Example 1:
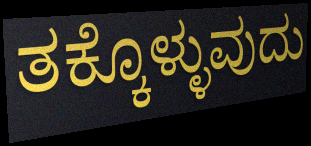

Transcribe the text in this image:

ತಕ್ಕೊಳ್ಳುವುದು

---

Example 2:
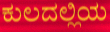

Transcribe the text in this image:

ಕುಲದಲ್ಲಿಯ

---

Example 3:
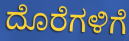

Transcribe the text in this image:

ದೊರೆಗಳಿಗೆ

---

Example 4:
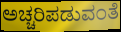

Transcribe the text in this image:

ಅಚ್ಚರಿಪಡುವಂತೆ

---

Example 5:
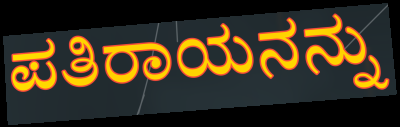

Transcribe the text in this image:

ಪತಿರಾಯನನ್ನು